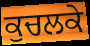
ਕੁਚਲਕੇ